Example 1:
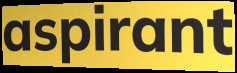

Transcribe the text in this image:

aspirant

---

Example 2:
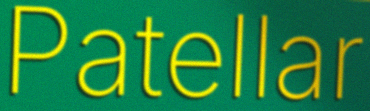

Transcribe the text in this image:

Patellar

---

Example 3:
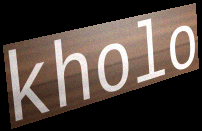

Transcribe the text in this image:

kholo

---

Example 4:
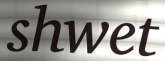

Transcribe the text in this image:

shwet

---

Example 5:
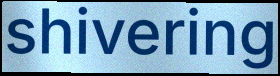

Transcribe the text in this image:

shivering